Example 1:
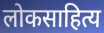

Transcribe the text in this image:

लोकसाहित्य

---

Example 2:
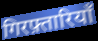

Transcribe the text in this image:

गिरफ़्तारियाँ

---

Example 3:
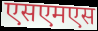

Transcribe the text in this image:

एसएमएस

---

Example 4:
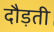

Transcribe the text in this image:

दौड़ती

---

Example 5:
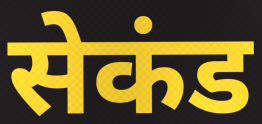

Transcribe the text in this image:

सेकंड